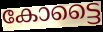
കോട്ടൈ